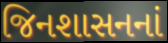
જિનશાસનનાં